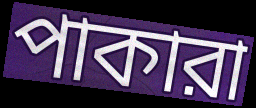
পাকারা